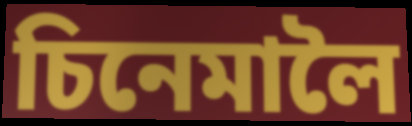
চিনেমালৈ